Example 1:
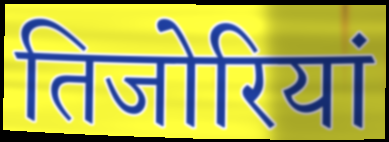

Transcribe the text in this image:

तिजोरियां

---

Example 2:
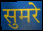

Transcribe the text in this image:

सुमरे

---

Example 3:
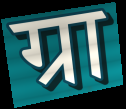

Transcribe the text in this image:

ग्रा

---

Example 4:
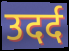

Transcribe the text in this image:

उदर्द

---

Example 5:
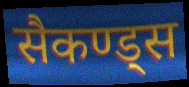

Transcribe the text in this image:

सैकण्ड्स